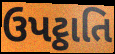
ઉપટ્ઠાતિ